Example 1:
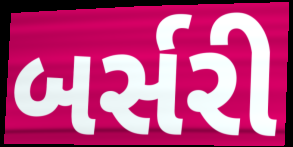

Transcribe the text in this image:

બર્સરી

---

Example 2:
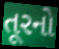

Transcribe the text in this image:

તૂરનો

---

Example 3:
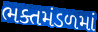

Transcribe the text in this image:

ભક્તમંડળમાં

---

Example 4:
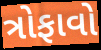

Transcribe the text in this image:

ત્રોફાવો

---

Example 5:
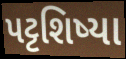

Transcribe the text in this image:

પટ્ટશિષ્યા